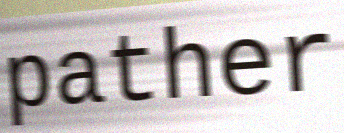
pather